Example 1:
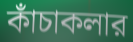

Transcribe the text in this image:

কাঁচাকলার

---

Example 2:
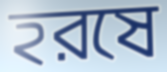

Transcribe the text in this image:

হরষে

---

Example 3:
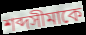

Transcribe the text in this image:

শব্দসীমাকে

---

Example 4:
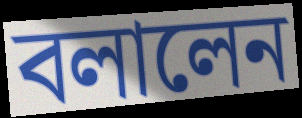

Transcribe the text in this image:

বলালেন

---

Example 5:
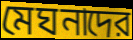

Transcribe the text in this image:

মেঘনাদের